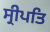
ਸ੍ਰੀਪਤਿ